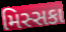
મિસ્સકા